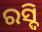
ରସ୍ଦି